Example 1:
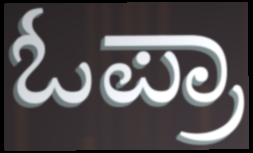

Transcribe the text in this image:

ಓಪ್ರಾ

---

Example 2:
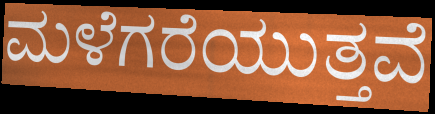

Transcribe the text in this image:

ಮಳೆಗರೆಯುತ್ತವೆ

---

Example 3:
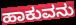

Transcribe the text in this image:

ಹಾಕುವನು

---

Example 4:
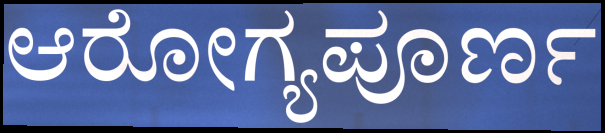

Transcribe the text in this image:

ಆರೋಗ್ಯಪೂರ್ಣ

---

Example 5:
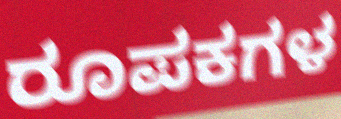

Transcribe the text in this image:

ರೂಪಕಗಳ